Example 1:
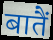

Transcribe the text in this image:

बातैं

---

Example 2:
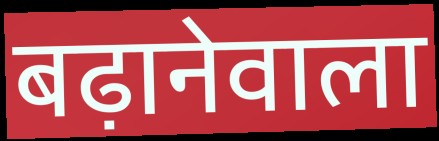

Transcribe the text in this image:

बढ़ानेवाला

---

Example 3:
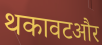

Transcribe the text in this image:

थकावटऔर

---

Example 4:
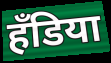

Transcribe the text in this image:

हँडिया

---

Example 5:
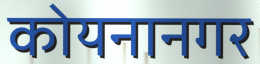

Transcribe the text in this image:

कोयनानगर